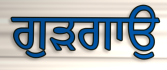
ਗੁੜਗਾਉ